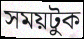
সময়টুক